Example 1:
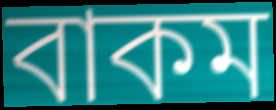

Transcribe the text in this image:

বাকম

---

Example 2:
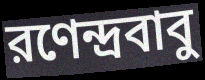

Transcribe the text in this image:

রণেন্দ্রবাবু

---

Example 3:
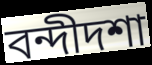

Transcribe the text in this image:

বন্দীদশা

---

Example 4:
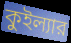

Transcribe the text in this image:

কুইল্যার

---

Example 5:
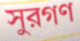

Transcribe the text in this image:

সুরগণ